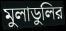
মুলাডুলির